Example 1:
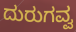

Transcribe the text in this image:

ದುರುಗವ್ವ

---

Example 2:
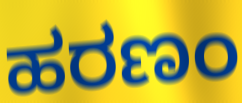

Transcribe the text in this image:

ಹರಣಂ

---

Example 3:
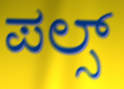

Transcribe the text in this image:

ಪಲ್ಸ್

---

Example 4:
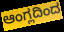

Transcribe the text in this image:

ಆಂಗ್ಲದಿಂದ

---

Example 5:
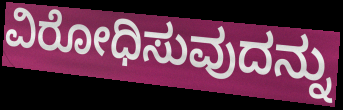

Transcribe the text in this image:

ವಿರೋಧಿಸುವುದನ್ನು